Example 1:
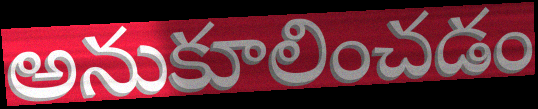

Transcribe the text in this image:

అనుకూలించడం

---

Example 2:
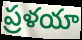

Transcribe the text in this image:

ప్రళయా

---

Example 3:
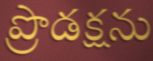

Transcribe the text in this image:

ప్రొడక్షను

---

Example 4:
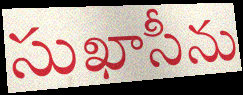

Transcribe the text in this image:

సుఖాసీను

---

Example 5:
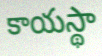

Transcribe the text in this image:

కాయస్థా